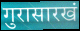
गुरासारखं